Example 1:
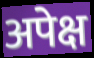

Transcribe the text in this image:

अपेक्ष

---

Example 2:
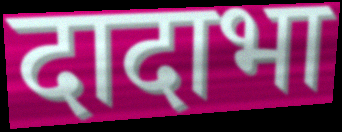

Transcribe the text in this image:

दादाभा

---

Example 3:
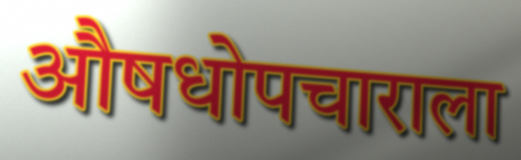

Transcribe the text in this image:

औषधोपचाराला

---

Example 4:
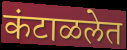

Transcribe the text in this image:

कंटाळलेत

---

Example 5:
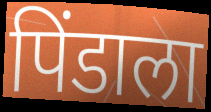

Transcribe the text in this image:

पिंडाला